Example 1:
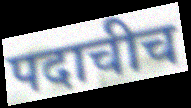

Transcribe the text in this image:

पदाचीच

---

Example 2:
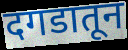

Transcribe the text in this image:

दगडातून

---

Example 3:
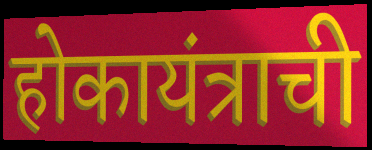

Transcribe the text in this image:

होकायंत्राची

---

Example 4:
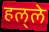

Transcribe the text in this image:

हल्ले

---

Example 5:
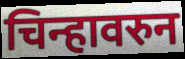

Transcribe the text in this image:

चिन्हावरुन